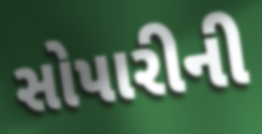
સોપારીની